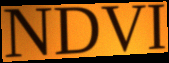
NDVI